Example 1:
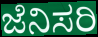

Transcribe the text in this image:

ಜೆನಿಸರಿ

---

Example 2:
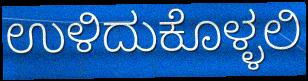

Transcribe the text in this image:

ಉಳಿದುಕೊಳ್ಳಲಿ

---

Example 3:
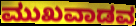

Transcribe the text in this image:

ಮುಖವಾಡವ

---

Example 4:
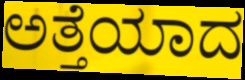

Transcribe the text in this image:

ಅತ್ತೆಯಾದ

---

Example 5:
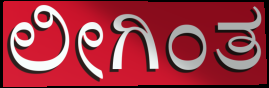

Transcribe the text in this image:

ಲೀಗಿಂತ